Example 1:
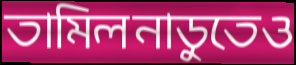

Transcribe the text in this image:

তামিলনাডুতেও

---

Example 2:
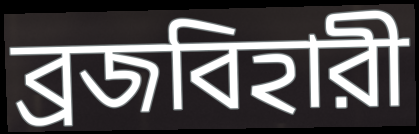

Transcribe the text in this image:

ব্রজবিহারী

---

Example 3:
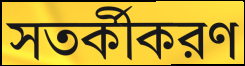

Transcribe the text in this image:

সতর্কীকরণ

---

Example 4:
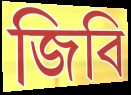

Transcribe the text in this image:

জিবি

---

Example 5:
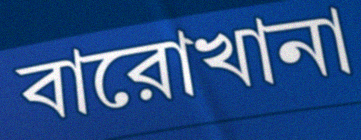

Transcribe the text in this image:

বারোখানা